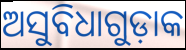
ଅସୁବିଧାଗୁଡ଼ାକ